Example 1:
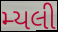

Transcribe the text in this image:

મ્યલી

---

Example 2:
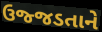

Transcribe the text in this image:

ઉજ્જડતાને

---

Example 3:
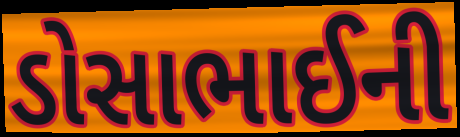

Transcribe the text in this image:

ડોસાભાઈની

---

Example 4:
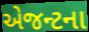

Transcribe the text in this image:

એજન્ટના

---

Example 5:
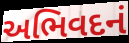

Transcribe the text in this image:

અભિવદનં